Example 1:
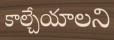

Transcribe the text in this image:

కాల్చేయాలని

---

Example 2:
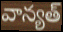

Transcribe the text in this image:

వాన్యత్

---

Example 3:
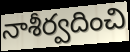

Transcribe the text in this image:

నాశీర్వదించి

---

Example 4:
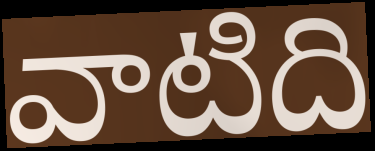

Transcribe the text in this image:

వాటిది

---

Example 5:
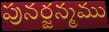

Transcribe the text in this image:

పునర్జన్మము